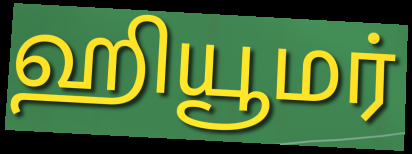
ஹியூமர்